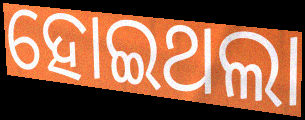
ହୋଇଥଲା